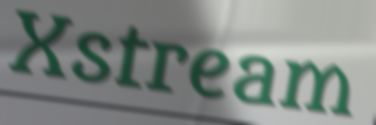
Xstream